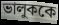
ভালুককে